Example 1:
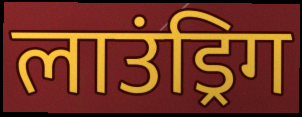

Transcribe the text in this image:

लाउंड्रिग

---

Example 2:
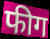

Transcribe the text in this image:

फीग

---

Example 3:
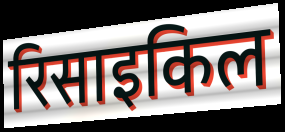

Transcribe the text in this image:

रिसाइकिल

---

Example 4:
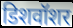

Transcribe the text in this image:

डिशवॉशर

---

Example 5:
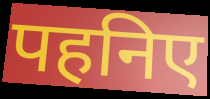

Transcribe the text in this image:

पहनिए